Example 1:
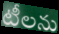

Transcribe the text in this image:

టీలను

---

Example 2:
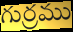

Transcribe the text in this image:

గుర్రము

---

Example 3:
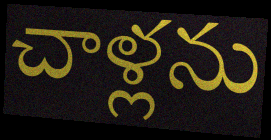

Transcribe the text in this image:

చాళ్లను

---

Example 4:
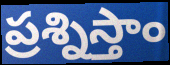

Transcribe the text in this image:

ప్రశ్నిస్తాం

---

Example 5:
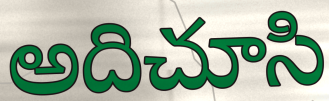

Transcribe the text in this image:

అదిచూసి